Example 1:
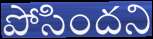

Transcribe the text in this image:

పోసిందని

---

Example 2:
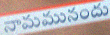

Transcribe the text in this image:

నామమునందు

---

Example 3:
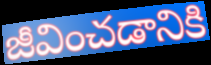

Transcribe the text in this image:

జీవించడానికి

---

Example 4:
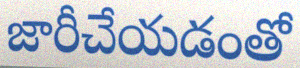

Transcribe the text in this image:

జారీచేయడంతో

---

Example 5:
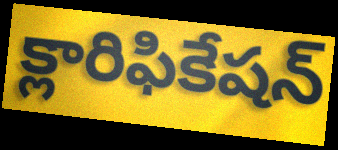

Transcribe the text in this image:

క్లారిఫికేషన్